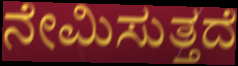
ನೇಮಿಸುತ್ತದೆ